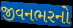
જીવનભરનો